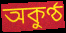
অকুণ্ঠ